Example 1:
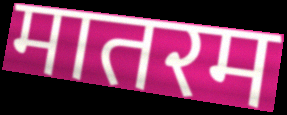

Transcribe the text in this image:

मातरम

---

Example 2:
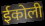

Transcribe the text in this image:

ईकोली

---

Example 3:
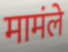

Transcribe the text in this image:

मामंले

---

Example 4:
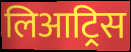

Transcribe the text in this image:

लिआट्रिस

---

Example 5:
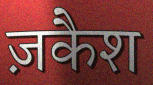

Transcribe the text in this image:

ज़कैश